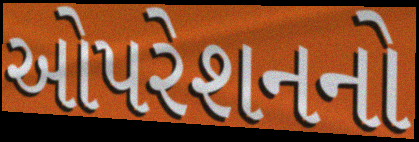
ઓપરેશનનો